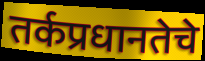
तर्कप्रधानतेचे